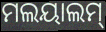
ମଲୟାଲମ୍